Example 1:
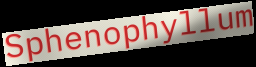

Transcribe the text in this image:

Sphenophyllum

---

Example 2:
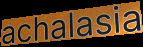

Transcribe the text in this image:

achalasia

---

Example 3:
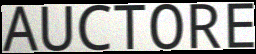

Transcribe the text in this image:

AUCTORE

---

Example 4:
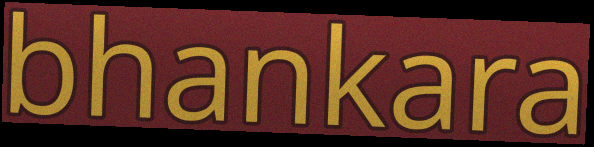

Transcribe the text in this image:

bhankara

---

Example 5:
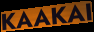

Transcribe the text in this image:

KAAKAI